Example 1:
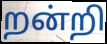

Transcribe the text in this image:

றன்றி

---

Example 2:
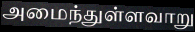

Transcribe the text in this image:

அமைந்துள்ளவாறு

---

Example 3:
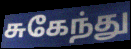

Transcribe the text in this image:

சுகேந்து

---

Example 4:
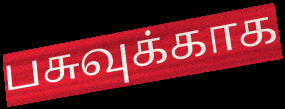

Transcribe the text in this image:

பசுவுக்காக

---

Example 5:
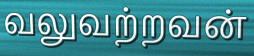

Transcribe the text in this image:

வலுவற்றவன்